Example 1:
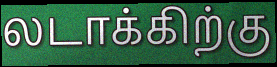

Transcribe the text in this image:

லடாக்கிற்கு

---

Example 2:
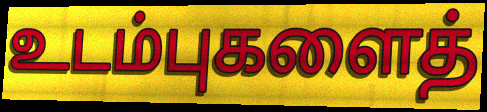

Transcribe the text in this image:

உடம்புகளைத்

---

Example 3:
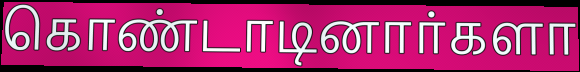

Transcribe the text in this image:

கொண்டாடினார்களா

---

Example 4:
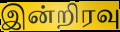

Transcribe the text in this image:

இன்றிரவு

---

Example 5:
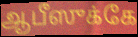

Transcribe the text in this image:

ஆபீஸுக்கே